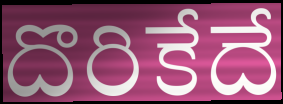
దొరికేదే